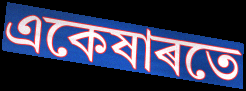
একেষাৰতে